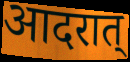
आदरात्